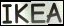
IKEA